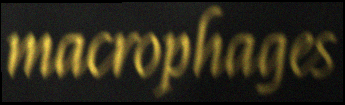
macrophages